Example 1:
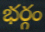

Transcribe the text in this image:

భర్గం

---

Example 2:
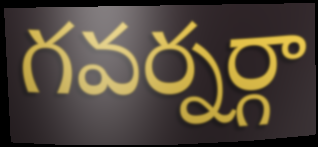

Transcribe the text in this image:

గవర్నర్గా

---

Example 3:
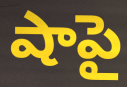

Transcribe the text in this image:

షాపై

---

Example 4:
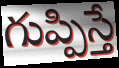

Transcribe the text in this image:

గుప్పిస్తే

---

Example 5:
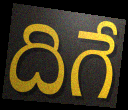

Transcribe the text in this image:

దిగే